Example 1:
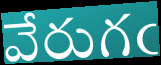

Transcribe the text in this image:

వేరుగఁ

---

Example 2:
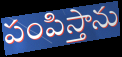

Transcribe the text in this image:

పంపిస్తాను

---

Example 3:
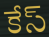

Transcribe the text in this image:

కేస్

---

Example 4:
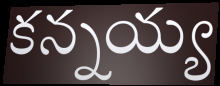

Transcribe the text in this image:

కన్నయ్య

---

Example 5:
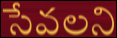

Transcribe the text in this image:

సేవలని